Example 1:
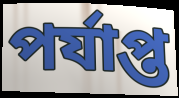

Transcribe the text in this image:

পর্যাপ্ত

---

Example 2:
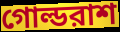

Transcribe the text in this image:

গোল্ডরাশ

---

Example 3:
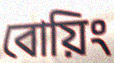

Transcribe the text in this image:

বোয়িং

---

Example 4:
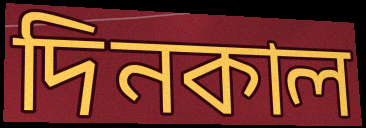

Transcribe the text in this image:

দিনকাল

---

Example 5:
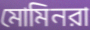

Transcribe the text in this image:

মোমিনরা